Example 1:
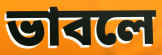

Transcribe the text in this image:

ভাবলে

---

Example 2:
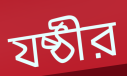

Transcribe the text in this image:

যষ্ঠীর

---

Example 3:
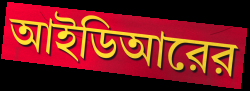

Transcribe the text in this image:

আইডিআরের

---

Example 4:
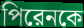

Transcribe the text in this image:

পিরেনকে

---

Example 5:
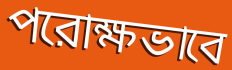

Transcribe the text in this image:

পরোক্ষভাবে